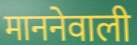
माननेवाली